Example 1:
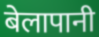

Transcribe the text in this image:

बेलापानी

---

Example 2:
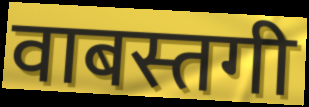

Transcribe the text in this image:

वाबस्तगी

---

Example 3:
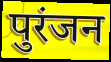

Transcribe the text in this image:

पुरंजन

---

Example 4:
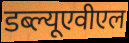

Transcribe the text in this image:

डब्ल्यूएवीएल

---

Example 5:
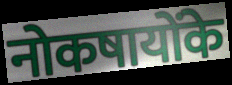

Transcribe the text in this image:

नोकषायोंके